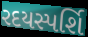
રદયસ્પર્શિ